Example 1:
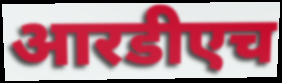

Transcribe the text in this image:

आरडीएच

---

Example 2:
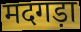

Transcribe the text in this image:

मदगड़ा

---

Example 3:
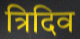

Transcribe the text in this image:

त्रिदिव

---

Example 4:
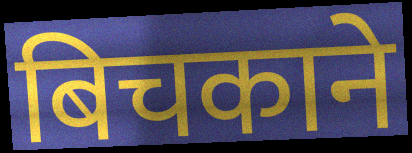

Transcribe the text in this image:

बिचकाने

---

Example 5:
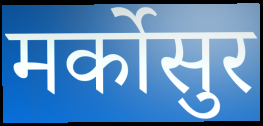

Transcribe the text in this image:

मर्कोसुर